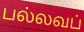
பல்லவப்